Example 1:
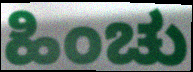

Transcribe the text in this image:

ಹಿಂಚು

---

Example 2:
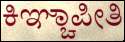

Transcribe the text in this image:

ಕಿಞ್ಚಾಪೀತಿ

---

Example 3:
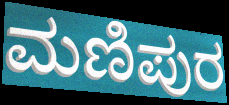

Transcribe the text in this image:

ಮಣಿಪುರ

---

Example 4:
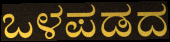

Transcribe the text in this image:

ಒಳಪಡದ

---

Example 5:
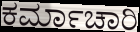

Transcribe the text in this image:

ಕರ್ಮಾಚಾರಿ